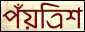
পঁয়ত্রিশ